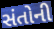
સંતોની